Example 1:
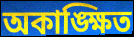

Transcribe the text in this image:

অকাঙ্ক্ষিত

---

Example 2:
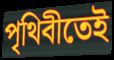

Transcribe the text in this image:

পৃথিবীতেই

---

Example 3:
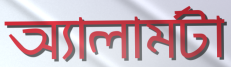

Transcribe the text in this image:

অ্যালার্মটা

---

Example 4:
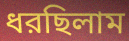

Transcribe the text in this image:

ধরছিলাম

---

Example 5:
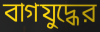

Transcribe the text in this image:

বাগযুদ্ধের